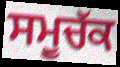
ਸਮੂਚੱਕ